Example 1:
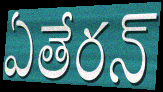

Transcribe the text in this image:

ఏతేరన్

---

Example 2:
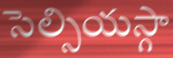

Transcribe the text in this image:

సెల్సియస్గా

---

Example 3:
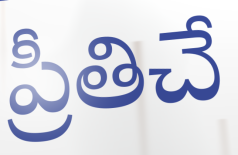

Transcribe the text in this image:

ప్రీతిచే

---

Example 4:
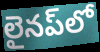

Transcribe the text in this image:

లైనప్‌లో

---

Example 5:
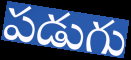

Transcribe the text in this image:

పడుగు